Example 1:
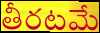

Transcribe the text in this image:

తీరటమే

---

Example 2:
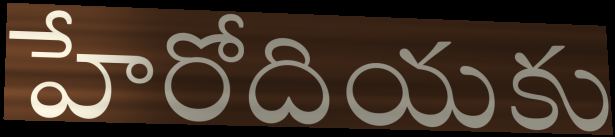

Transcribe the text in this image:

హేరోదియకు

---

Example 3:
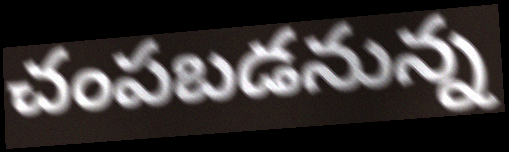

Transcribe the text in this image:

చంపబడనున్న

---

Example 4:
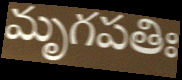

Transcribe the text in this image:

మృగపతిః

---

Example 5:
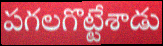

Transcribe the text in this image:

పగలగొట్టేశాడు